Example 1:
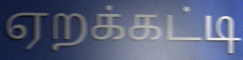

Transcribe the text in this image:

ஏறக்கட்டி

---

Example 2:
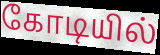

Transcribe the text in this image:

கோடியில்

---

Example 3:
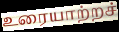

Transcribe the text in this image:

உரையாற்றச்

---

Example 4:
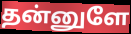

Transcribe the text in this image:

தன்னுளே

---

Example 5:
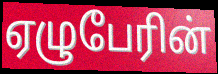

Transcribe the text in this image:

ஏழுபேரின்